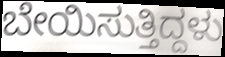
ಬೇಯಿಸುತ್ತಿದ್ದಳು